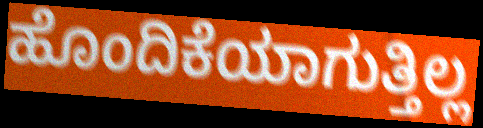
ಹೊಂದಿಕೆಯಾಗುತ್ತಿಲ್ಲ